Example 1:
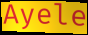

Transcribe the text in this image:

Ayele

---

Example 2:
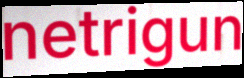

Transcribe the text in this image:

netrigun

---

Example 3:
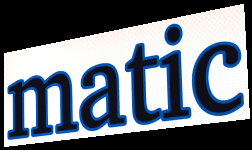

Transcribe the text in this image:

matic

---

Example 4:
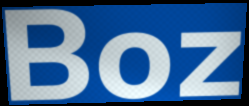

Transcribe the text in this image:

Boz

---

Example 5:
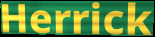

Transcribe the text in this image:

Herrick